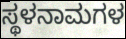
ಸ್ಥಳನಾಮಗಳ